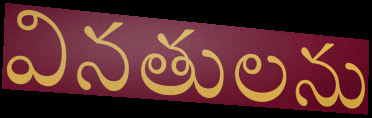
వినతులను